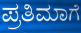
ಪ್ರತಿಮಾಗೆ